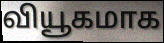
வியூகமாக